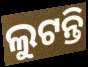
ଲୁଟନ୍ତି